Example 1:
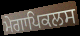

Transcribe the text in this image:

ਮੇਗਾਪਿਕਲਸ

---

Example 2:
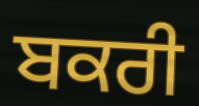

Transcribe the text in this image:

ਬਕਰੀ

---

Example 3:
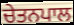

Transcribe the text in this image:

ਚੇਤਨਪਾਲ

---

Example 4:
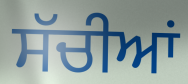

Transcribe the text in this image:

ਸੱਚੀਆਂ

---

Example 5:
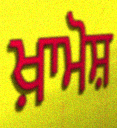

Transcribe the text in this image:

ਖ਼ਾਮੋਸ਼